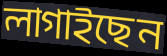
লাগাইছেন